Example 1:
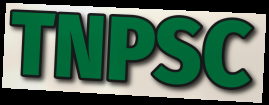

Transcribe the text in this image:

TNPSC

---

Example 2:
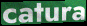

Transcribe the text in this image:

catura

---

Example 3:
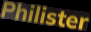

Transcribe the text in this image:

Philister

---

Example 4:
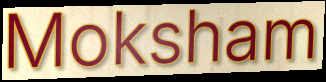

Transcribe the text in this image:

Moksham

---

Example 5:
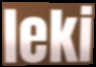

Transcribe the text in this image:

leki